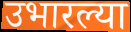
उभारल्या